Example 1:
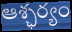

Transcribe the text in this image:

ఆశ్ఛర్యం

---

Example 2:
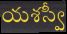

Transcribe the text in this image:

యశస్వీ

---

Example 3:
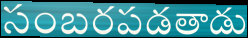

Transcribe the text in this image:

సంబరపడతాడు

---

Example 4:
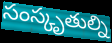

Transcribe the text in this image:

సంస్కృతుల్ని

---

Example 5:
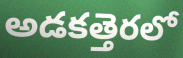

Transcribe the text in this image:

అడకత్తెరలో